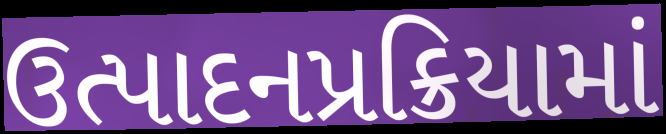
ઉત્પાદનપ્રક્રિયામાં